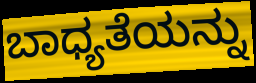
ಬಾಧ್ಯತೆಯನ್ನು